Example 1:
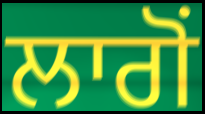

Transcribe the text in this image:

ਲਾਗੋਂ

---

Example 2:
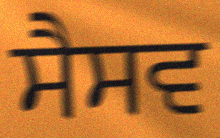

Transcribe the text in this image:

ਸੈਸਵ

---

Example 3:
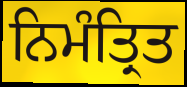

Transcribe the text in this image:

ਨਿਮੰਤ੍ਰਿਤ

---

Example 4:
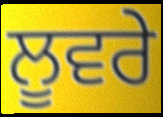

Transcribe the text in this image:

ਲੂਵਰੇ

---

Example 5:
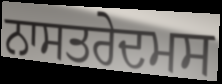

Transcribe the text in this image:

ਨਾਸਤਰੇਦਮਸ